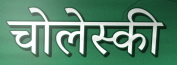
चोलेस्की